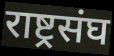
राष्ट्रसंघ